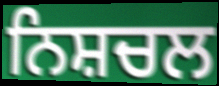
ਨਿਸ਼ਚਲ